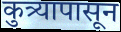
कुत्र्यापासून